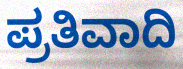
ಪ್ರತಿವಾದಿ